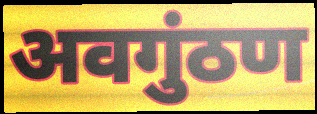
अवगुंठण